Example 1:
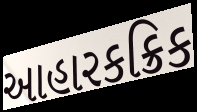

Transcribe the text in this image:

આહારકક્રિક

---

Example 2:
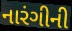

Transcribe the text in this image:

નારંગીની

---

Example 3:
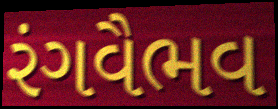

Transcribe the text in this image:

રંગવૈભવ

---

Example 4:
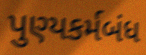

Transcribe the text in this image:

પુણ્યકર્મબંધ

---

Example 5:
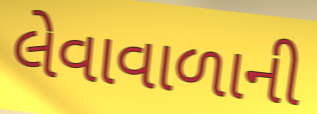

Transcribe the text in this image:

લેવાવાળાની